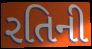
રતિની